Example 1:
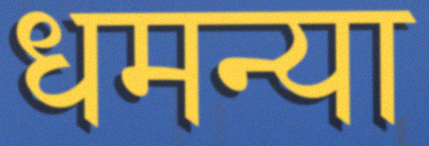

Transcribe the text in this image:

धमन्या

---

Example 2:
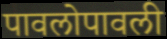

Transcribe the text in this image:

पावलोपावली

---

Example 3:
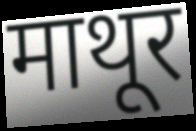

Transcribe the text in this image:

माथूर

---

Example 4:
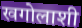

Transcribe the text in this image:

खगोलाशी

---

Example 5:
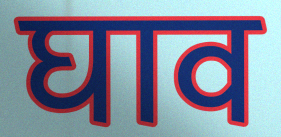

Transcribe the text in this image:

घाव